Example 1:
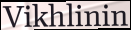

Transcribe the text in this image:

Vikhlinin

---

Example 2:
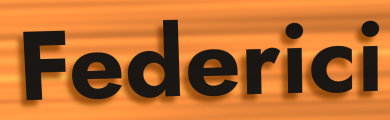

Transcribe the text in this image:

Federici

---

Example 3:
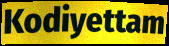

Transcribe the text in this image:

Kodiyettam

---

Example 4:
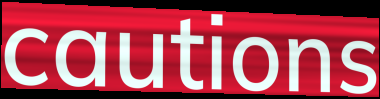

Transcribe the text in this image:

cautions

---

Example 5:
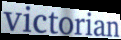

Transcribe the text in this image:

victorian